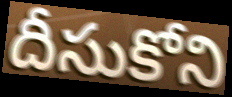
దీసుకోని